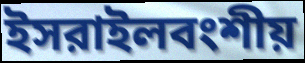
ইসরাইলবংশীয়